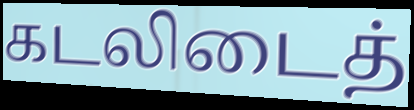
கடலிடைத்